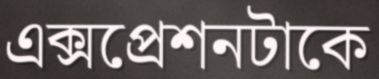
এক্সপ্রেশনটাকে